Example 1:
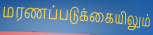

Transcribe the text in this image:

மரணப்படுக்கையிலும்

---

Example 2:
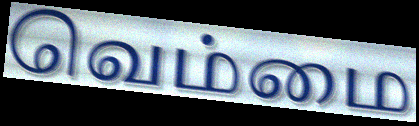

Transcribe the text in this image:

வெம்மை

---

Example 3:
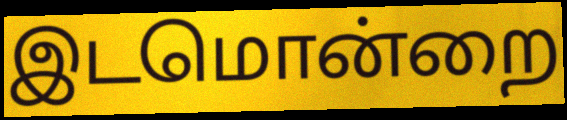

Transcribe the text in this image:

இடமொன்றை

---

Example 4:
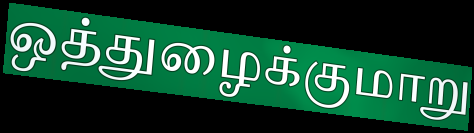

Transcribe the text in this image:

ஒத்துழைக்குமாறு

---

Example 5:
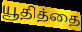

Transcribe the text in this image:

யூதித்தை